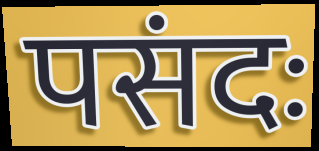
पसंदः